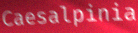
Caesalpinia